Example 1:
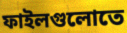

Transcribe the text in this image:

ফাইলগুলোতে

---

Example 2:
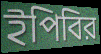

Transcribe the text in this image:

ইপিবির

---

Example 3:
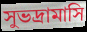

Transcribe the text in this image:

সুভদ্রামাসি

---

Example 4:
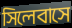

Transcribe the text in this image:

সিলেবাসে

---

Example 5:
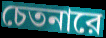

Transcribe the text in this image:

চেতনারে